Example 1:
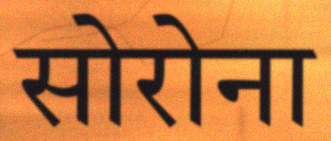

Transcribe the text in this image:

सोरोना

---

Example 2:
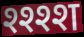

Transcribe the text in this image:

श्श्श्श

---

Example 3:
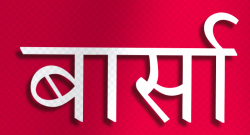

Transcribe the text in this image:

बार्सा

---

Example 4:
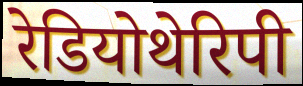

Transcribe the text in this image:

रेडियोथेरिपी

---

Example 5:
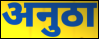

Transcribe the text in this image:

अनुठा